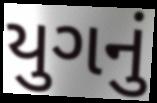
યુગનું